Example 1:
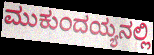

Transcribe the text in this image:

ಮುಕುಂದಯ್ಯನಲ್ಲಿ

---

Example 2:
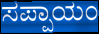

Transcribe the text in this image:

ಸಪ್ಪಾಯಂ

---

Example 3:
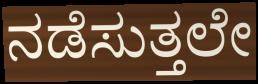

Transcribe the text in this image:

ನಡೆಸುತ್ತಲೇ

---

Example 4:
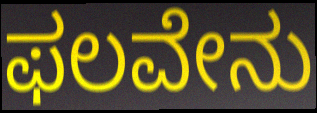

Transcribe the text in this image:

ಫಲವೇನು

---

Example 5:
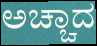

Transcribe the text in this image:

ಅಚ್ಚಾದ